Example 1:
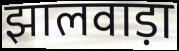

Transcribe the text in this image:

झालवाड़ा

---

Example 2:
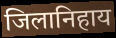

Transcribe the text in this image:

जिलानिहाय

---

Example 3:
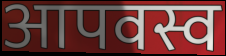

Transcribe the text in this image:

आपवस्व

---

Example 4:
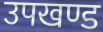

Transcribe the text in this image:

उपखण्ड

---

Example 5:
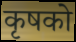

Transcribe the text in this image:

कृषको